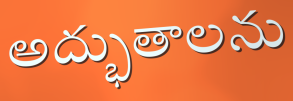
అద్భుతాలను